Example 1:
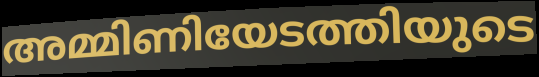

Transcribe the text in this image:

അമ്മിണിയേടത്തിയുടെ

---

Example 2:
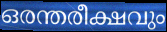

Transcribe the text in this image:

ഒരന്തരീക്ഷവും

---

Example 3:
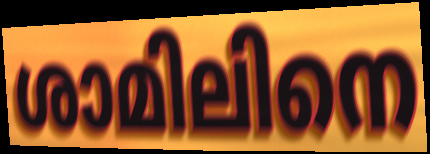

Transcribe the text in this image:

ശാമിലിനെ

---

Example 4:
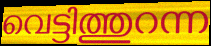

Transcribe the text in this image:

വെട്ടിത്തുറന്ന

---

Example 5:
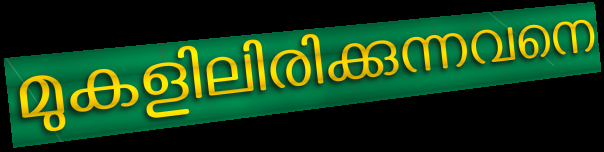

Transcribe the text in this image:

മുകളിലിരിക്കുന്നവനെ